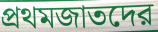
প্রথমজাতদের